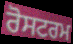
ਰੋਸਟਰਮ